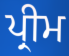
ਪ੍ਰੀਮ